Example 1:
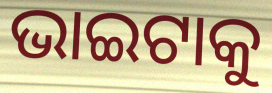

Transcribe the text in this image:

ଭାଇଟାକୁ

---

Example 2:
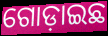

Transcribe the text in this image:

ଗୋଡ଼ାଇଛ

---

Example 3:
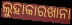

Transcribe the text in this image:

ଲୁହାକାରଖାନା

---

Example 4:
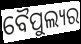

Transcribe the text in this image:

ବୈପୁଲ୍ୟର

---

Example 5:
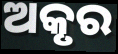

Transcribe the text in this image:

ଅକୃର